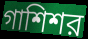
গাশিশর